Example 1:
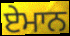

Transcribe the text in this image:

ਏਮਾਨ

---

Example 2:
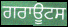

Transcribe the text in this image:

ਗਰਾਊਟਸ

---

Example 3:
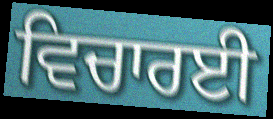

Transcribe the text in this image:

ਵਿਚਾਰਈ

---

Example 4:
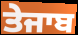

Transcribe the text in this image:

ਤੇਜਾਬ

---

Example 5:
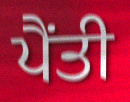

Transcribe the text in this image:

ਪੈਂਤੀ